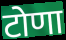
टोणा